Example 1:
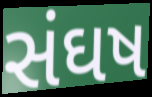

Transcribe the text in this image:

સંઘષ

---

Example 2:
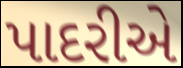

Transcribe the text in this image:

પાદરીએ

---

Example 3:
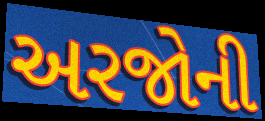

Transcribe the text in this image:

અરજોની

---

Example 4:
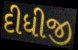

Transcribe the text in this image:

દીધીજી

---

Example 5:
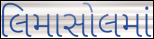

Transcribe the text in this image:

લિમાસોલમાં